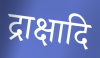
द्राक्षादि